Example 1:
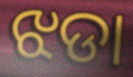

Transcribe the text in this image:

ଝଡା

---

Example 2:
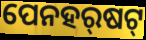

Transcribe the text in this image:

ପେନହର୍‍ଷଟ୍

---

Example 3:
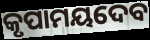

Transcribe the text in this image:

କୃପାମୟଦେବ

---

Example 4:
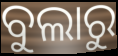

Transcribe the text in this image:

ବୁଲାରୁ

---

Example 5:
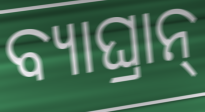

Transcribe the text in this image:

ବ୍ୟାଘ୍ରାନ୍